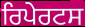
ਰਿਪੇਰਟਸ